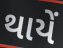
થાયેં